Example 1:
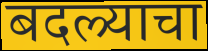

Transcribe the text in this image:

बदल्याचा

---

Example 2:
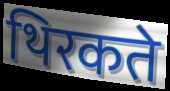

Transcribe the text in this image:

थिरकते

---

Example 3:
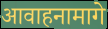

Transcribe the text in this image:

आवाहनामागे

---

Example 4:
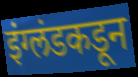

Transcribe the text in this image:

इंग्लंडकडून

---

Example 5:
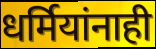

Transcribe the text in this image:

धर्मियांनाही